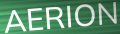
AERION